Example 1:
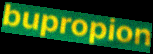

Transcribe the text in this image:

bupropion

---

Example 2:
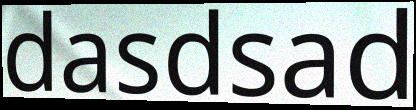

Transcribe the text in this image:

dasdsad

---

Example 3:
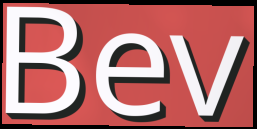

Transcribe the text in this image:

Bev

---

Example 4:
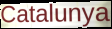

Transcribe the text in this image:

Catalunya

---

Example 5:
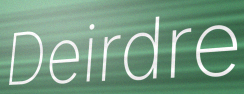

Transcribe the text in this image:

Deirdre